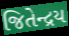
જિતેન્દ્રય